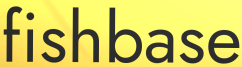
fishbase